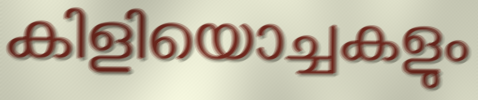
കിളിയൊച്ചകളും